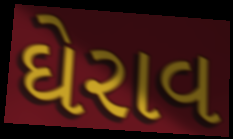
ઘેરાવ